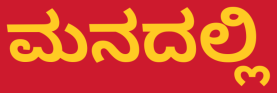
ಮನದಲ್ಲಿ